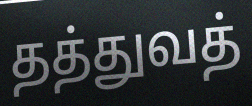
தத்துவத்